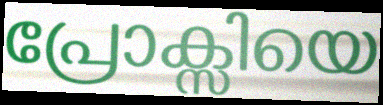
പ്രോക്സിയെ